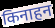
किनाहन